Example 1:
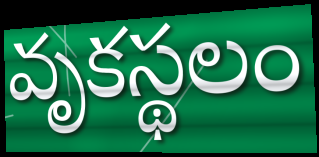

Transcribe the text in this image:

వృకస్థలం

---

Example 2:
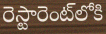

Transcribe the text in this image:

రెస్టారెంట్‌లోకి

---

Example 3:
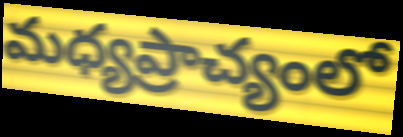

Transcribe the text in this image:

మధ్యప్రాచ్యంలో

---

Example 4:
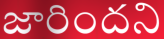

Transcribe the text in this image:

జారిందని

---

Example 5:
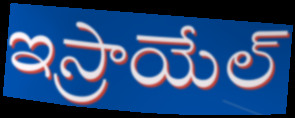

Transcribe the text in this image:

ఇస్రాయేల్